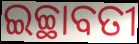
ଇଚ୍ଛାବତୀ